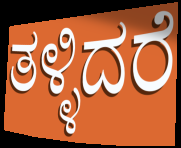
ತಳ್ಳಿದರೆ